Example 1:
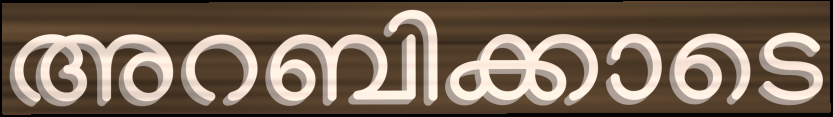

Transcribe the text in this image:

അറബിക്കാടെ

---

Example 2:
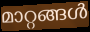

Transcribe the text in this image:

മാറ്റങ്ങൾ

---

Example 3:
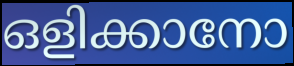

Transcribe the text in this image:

ഒളിക്കാനോ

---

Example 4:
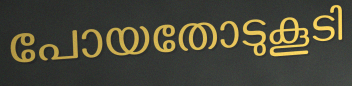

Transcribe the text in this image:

പോയതോടുകൂടി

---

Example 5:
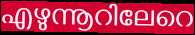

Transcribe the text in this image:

എഴുന്നൂറിലേറെ